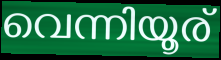
വെന്നിയൂര്